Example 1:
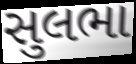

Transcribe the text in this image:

સુલભા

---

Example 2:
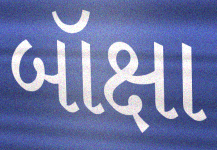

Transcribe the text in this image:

બૉક્ષા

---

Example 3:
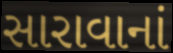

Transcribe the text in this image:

સારાવાનાં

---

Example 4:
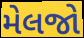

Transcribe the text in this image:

મેલજો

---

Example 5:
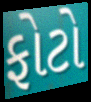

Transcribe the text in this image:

ફોટો